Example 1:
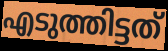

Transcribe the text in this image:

എടുത്തിട്ടത്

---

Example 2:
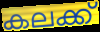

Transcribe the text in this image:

കലക്ക്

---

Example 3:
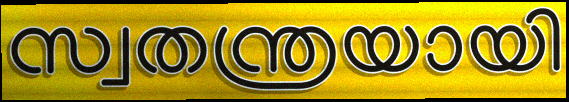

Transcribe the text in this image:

സ്വതന്ത്രയായി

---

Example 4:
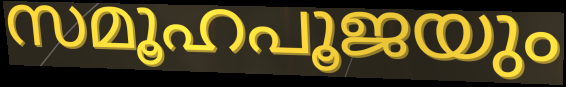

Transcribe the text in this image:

സമൂഹപൂജയും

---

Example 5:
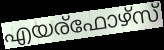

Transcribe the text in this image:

എയര്ഫോഴ്സ്